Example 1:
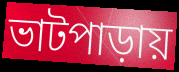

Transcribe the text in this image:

ভাটপাড়ায়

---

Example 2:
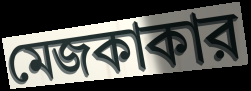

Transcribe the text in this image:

মেজকাকার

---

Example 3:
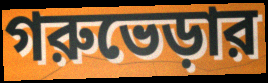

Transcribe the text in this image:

গরুভেড়ার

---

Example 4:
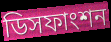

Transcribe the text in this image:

ডিসফাংশন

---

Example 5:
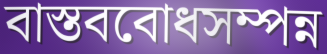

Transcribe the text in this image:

বাস্তববোধসম্পন্ন